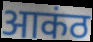
आकंठ